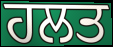
ਹਲਤ